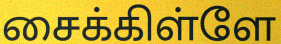
சைக்கிள்ளே